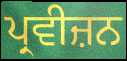
ਪ੍ਰਵੀਜ਼ਨ